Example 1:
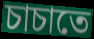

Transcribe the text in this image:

চাচাতে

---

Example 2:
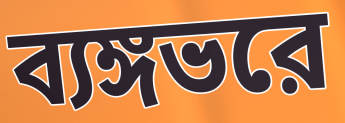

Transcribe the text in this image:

ব্যঙ্গভরে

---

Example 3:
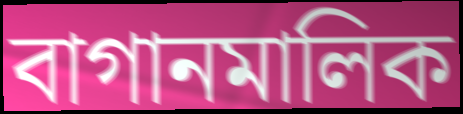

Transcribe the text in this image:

বাগানমালিক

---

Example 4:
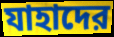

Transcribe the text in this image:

যাহাদের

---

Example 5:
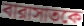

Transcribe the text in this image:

বারাসাতকে